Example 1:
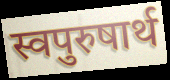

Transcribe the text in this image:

स्वपुरुषार्थ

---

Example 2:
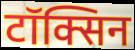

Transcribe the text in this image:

टॉक्सिन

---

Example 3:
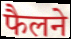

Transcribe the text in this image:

फैलने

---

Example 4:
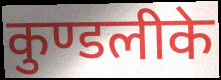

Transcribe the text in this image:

कुण्डलीके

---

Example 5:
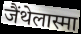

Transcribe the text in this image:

जैंथेलास्मा